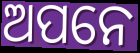
ଅପନେ